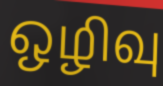
ஒழிவு